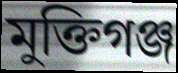
মুক্তিগঞ্জ